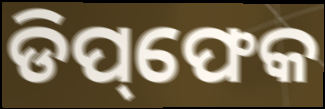
ଡିପ୍‌ଫେକ